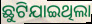
ଛୁଟିଯାଇଥିଲା